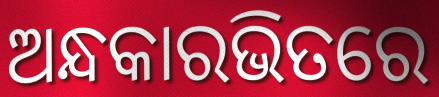
ଅନ୍ଧକାରଭିତରେ